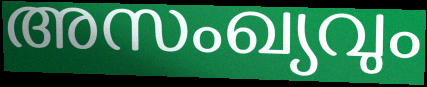
അസംഖ്യവും